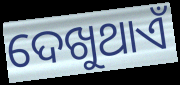
ଦେଖୁଥାଏଁ